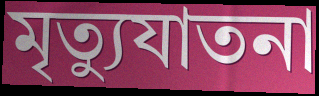
মৃত্যুযাতনা